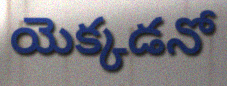
యెక్కడనో